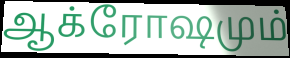
ஆக்ரோஷமும்